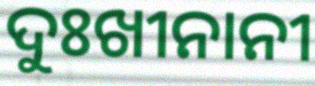
ଦୁଃଖୀନାନୀ